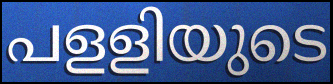
പളളിയുടെ